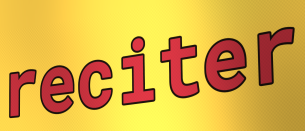
reciter